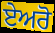
ਏਅਰੋ